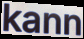
kann